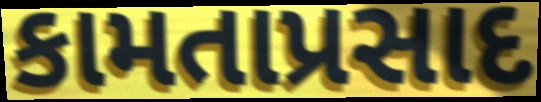
કામતાપ્રસાદ